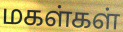
மகள்கள்